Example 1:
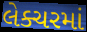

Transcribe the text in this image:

લેક્ચરમાં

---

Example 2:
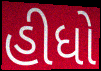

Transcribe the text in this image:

હીધો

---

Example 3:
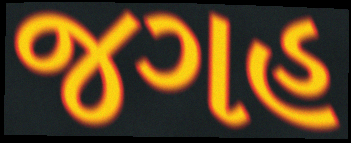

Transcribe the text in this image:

જગહ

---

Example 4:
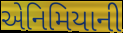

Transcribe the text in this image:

એનિમિયાની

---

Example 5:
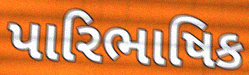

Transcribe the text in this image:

પારિભાષિક